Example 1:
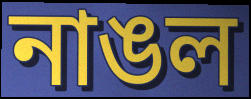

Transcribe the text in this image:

নাঙল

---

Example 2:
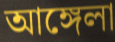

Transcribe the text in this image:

আঙ্গেলা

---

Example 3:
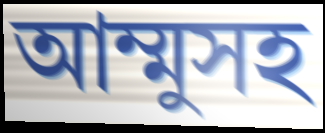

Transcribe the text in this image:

আম্মুসহ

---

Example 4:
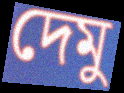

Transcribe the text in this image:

দেমু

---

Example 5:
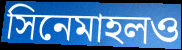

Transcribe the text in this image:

সিনেমাহলও